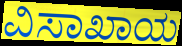
ವಿಸಾಖಾಯ